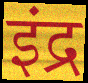
इंद्र